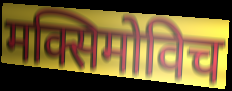
मक्सिमोविच